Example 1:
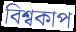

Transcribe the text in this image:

বিশ্বকাপ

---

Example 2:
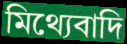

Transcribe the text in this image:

মিথ্যেবাদি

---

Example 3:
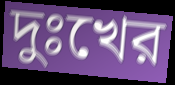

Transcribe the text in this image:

দুঃখের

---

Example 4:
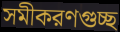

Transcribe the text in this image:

সমীকরণগুচ্ছ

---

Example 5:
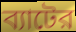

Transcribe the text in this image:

ব্যাটের